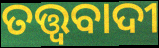
ତତ୍ତ୍ଵବାଦୀ